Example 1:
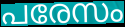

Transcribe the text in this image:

പരേസം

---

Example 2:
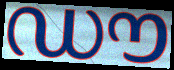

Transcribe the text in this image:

ഡൗ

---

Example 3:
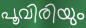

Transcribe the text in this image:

പൂവിരിയും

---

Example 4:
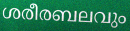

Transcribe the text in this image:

ശരീരബലവും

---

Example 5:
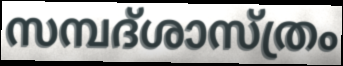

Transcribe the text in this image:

സമ്പദ്ശാസ്ത്രം